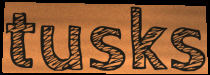
tusks